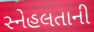
સ્નેહલતાની